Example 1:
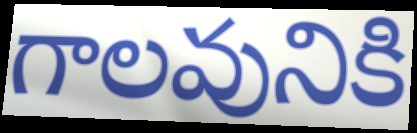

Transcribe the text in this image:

గాలవునికి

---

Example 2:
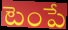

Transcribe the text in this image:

టెంపే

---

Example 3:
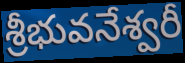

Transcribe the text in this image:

శ్రీభువనేశ్వరీ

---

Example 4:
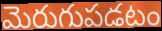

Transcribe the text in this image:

మెరుగుపడటం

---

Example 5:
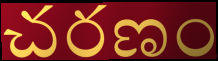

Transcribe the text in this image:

చరణం